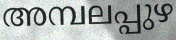
അമ്പലപ്പുഴ